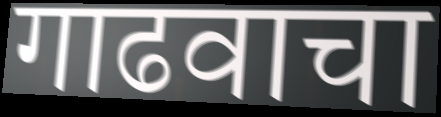
गाढवाचा